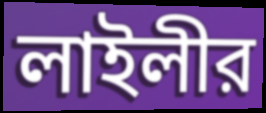
লাইলীর